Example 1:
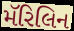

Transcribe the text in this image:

મૅરિલિન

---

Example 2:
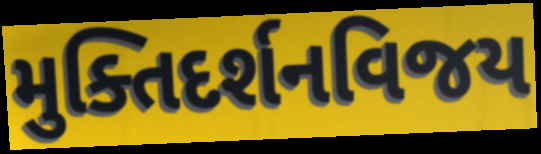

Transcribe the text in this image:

મુક્તિદર્શનવિજય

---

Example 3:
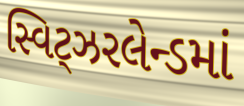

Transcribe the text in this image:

સ્વિટ્ઝરલેન્ડમાં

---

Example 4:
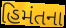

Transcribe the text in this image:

હિમંતના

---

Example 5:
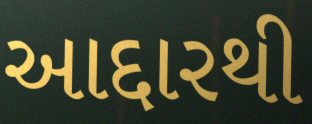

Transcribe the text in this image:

આદ્દારથી